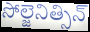
సోల్జెనిత్సిన్